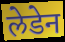
लेडेन